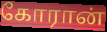
கோரான்